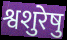
श्वशुरेषु